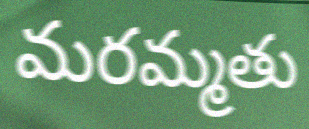
మరమ్మతు